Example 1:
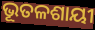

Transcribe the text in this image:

ଭୂତଳଶାୟୀ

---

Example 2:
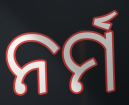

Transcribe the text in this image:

ନର୍ମ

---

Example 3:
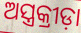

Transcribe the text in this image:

ଅସ୍ତ୍ରକ୍ରୀଡ଼ା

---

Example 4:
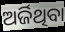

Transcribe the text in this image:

ଅର୍ଜିଥିବା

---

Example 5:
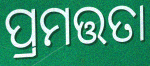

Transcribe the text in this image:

ପ୍ରମତ୍ତତା